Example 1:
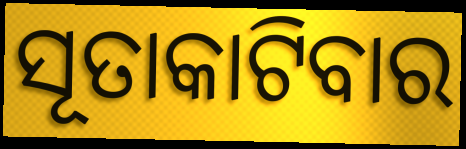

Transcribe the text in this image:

ସୂତାକାଟିବାର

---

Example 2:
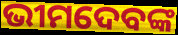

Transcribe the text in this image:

ଭୀମଦେବଙ୍କ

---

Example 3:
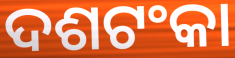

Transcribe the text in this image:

ଦଶଟଂକା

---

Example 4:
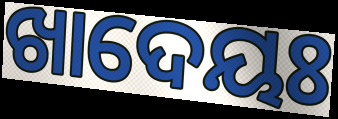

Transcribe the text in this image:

ଖାଦେୟଃ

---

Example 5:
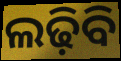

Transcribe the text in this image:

ଲଢ଼ିବି